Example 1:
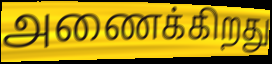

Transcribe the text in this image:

அணைக்கிறது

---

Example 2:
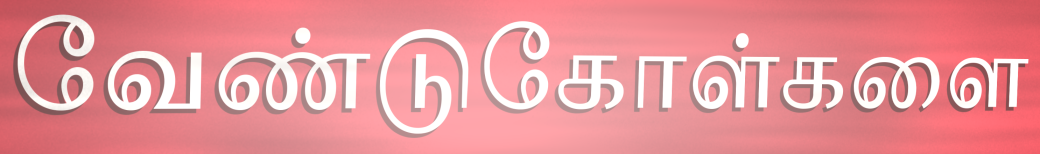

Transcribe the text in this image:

வேண்டுகோள்களை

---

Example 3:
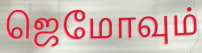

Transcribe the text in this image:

ஜெமோவும்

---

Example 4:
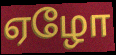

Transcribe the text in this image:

ஏழோ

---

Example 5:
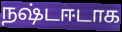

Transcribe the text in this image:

நஷ்டஈடாக